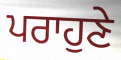
ਪਰਾਹੁਣੇ